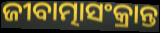
ଜୀବାତ୍ମାସଂକ୍ରାନ୍ତ